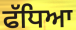
ਫੱਧਿਆ